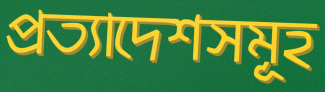
প্রত্যাদেশসমূহ